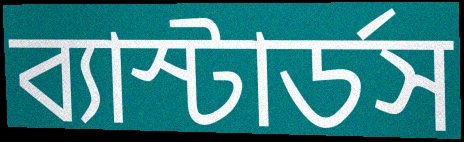
ব্যাস্টার্ডস